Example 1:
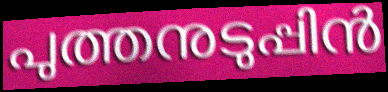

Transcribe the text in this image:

പുത്തനുടുപ്പിൻ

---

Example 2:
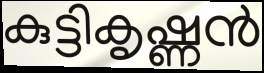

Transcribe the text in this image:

കുട്ടികൃഷ്ണൻ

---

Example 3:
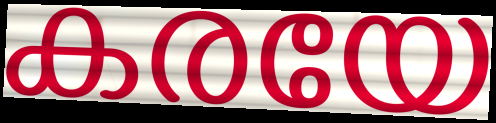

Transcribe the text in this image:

കരയേ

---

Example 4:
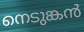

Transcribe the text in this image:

നെടുങ്കൻ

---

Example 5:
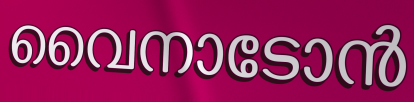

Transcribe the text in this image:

വൈനാടോൻ